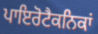
ਪਾਇਰੋਟੈਕਨਿਕਾਂ